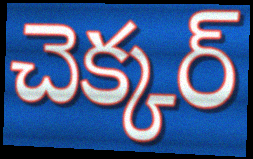
చెక్కర్